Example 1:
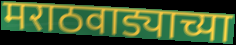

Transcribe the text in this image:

मराठवाड्याच्या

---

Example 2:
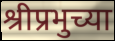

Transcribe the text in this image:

श्रीप्रभुच्या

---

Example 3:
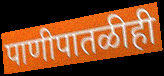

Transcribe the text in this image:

पाणीपातळीही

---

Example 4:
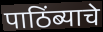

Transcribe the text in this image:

पाठिंब्याचे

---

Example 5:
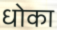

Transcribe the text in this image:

धोका